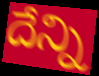
దేన్ని